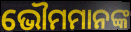
ଭୌମମାନଙ୍କ